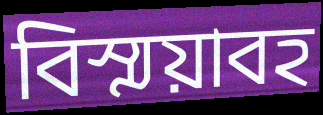
বিস্ময়াবহ